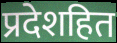
प्रदेशहित